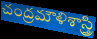
చంద్రమౌళిశాస్త్రి